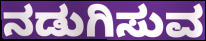
ನಡುಗಿಸುವ